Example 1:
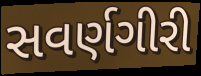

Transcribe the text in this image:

સવર્ણગીરી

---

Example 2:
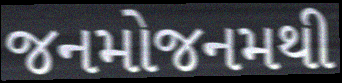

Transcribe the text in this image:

જનમોજનમથી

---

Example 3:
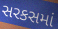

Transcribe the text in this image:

સરકસમાં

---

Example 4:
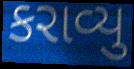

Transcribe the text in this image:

કરાવ્યુ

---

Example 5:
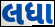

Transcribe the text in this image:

લધા